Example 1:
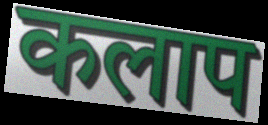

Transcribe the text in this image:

कलाप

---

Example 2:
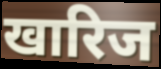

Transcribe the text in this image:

खारिज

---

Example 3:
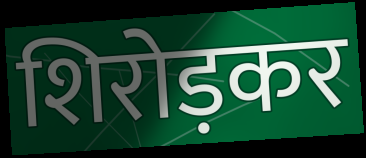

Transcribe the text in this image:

शिरोड़कर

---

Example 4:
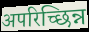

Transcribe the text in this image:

अपरिच्छिन्न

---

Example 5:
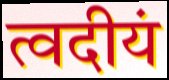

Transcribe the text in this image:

त्वदीयं